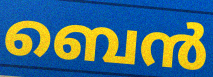
ബെൻ